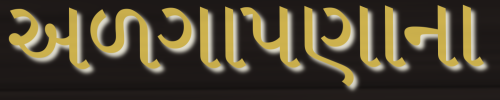
અળગાપણાના